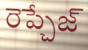
రెప్చేజ్